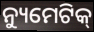
ନ୍ୟୁମେଟିକ୍